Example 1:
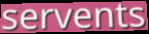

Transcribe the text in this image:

servents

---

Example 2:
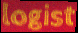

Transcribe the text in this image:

logist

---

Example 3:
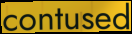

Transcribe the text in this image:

contused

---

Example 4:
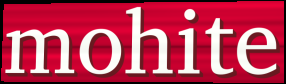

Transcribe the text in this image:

mohite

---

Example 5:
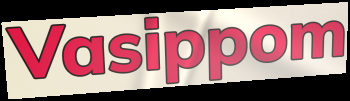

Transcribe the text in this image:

Vasippom